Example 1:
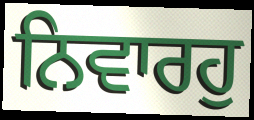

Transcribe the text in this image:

ਨਿਵਾਰਹੁ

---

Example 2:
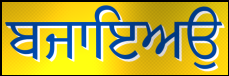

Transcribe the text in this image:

ਬਜਾਇਅਉ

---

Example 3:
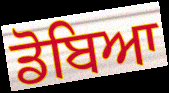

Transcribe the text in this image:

ਡੋਬਿਆ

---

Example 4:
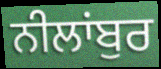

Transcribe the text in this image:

ਨੀਲਾਂਬੁਰ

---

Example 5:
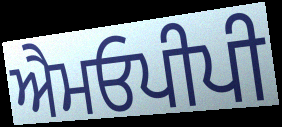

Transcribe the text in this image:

ਐਮਓਪੀਪੀ